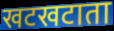
खटखटाता